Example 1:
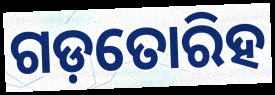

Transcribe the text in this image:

ଗଡ଼ତୋରିହ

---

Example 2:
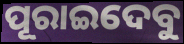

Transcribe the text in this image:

ପୂରାଇଦେବୁ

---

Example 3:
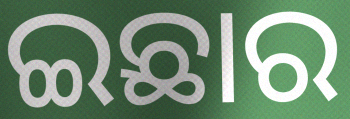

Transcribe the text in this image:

ଇଛାର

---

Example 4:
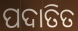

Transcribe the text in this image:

ପଦାତିତ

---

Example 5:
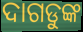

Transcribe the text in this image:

ଦାଗଡୁଙ୍କ